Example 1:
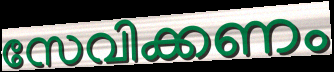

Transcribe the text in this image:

സേവിക്കണം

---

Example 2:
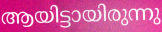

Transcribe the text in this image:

ആയിട്ടായിരുന്നു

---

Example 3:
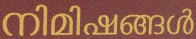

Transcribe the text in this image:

നിമിഷങ്ങൾ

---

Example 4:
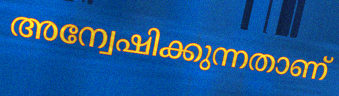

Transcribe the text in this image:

അന്വേഷിക്കുന്നതാണ്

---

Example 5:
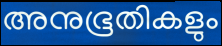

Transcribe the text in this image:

അനുഭൂതികളും